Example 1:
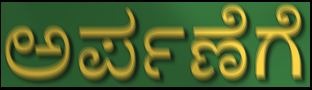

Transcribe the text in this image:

ಅರ್ಪಣೆಗೆ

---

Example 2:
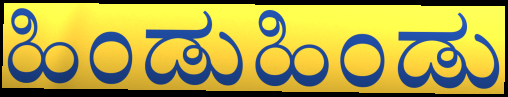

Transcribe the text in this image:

ಹಿಂಡುಹಿಂಡು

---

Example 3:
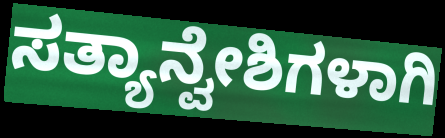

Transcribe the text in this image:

ಸತ್ಯಾನ್ವೇಶಿಗಳಾಗಿ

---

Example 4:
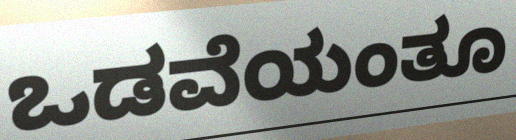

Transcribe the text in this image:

ಒಡವೆಯಂತೂ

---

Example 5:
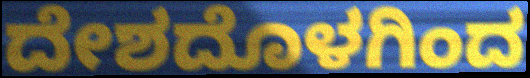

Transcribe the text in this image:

ದೇಶದೊಳಗಿಂದ